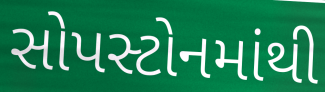
સોપસ્ટોનમાંથી